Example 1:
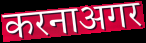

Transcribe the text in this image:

करनाअगर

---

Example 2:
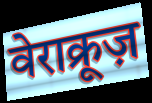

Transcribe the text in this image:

वेराक्रूज़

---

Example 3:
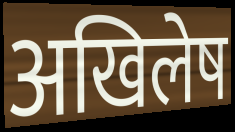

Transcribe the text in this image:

अखिलेष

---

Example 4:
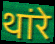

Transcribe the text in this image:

थांरे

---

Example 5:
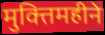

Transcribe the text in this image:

मुक्तिमहीने